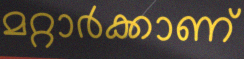
മറ്റാർക്കാണ്